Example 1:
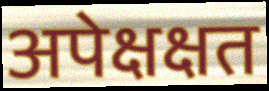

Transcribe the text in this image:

अपेक्षक्षत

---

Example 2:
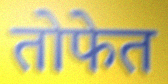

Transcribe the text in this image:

तोफेत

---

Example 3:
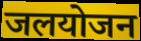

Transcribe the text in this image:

जलयोजन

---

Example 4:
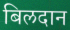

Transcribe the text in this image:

बिलदान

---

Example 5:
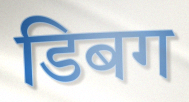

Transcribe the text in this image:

डिबग